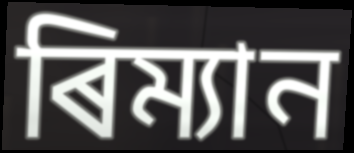
ৰিম্যান